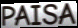
PAISA